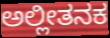
ಅಲ್ಲೀತನಕ